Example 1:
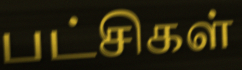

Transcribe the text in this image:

பட்சிகள்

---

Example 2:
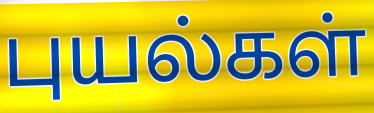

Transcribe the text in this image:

புயல்கள்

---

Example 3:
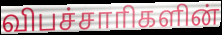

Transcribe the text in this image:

விபச்சாரிகளின்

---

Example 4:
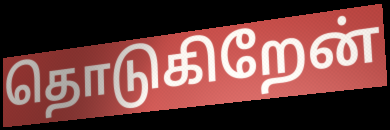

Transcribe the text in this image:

தொடுகிறேன்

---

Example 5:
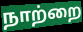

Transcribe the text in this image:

நாற்றை